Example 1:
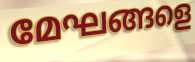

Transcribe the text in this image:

മേഘങ്ങളെ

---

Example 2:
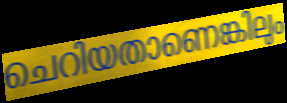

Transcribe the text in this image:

ചെറിയതാണെങ്കിലും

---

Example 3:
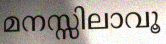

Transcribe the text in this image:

മനസ്സിലാവൂ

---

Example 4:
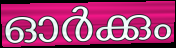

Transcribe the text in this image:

ഓർക്കും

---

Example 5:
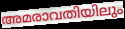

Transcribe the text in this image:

അമരാവതിയിലും